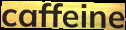
caffeine